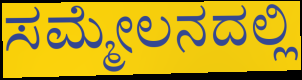
ಸಮ್ಮೇಲನದಲ್ಲಿ